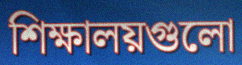
শিক্ষালয়গুলো